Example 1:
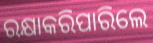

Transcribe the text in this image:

ରକ୍ଷାକରିପାରିଲେ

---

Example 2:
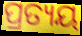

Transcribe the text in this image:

ପ୍ରତ୍ଯୟ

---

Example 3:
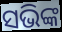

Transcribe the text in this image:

ସଭିଙ୍କ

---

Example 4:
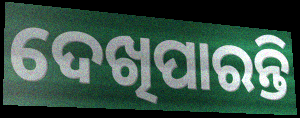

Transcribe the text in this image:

ଦେଖିପାରନ୍ତି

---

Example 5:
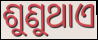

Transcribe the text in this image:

ଶୁଣୁଥାଏ